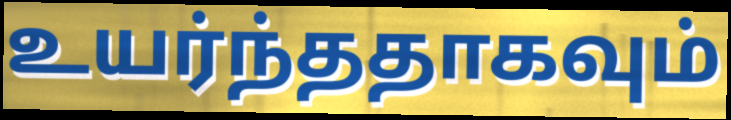
உயர்ந்ததாகவும்